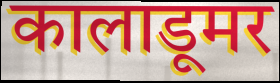
कालाडूमर